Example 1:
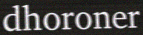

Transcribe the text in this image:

dhoroner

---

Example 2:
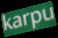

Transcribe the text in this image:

karpu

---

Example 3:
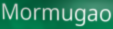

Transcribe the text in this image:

Mormugao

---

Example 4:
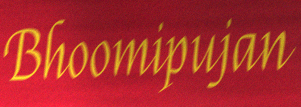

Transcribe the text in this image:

Bhoomipujan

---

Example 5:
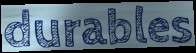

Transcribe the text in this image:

durables